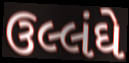
ઉલ્લંઘે